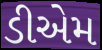
ડીએમ